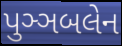
પુઞ્ઞબલેન